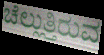
ಚೆಲ್ಲುತ್ತಿರುವ